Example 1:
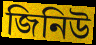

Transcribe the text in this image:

জিনিউ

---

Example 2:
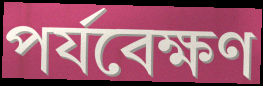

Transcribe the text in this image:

পর্যবেক্ষণ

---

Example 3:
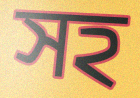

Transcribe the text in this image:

সহ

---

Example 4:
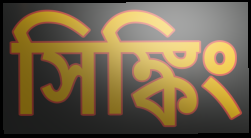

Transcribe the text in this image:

সিঙ্কিং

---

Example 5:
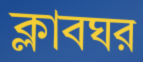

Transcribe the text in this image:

ক্লাবঘর